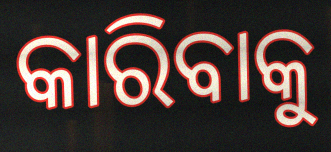
କାରିବାକୁ